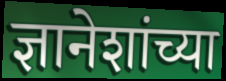
ज्ञानेशांच्या